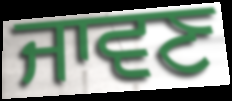
ਜਾਵਣ